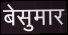
बेसुमार